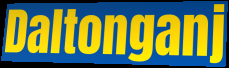
Daltonganj